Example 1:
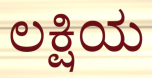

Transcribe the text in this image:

ಲಕ್ಷಿಯ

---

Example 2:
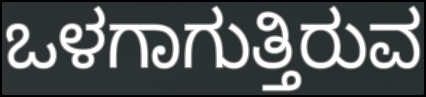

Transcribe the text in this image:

ಒಳಗಾಗುತ್ತಿರುವ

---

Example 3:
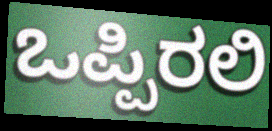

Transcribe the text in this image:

ಒಪ್ಪಿರಲಿ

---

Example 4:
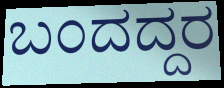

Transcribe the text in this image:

ಬಂದದ್ದರ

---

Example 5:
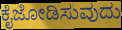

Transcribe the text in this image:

ಕೈಜೋಡಿಸುವುದು